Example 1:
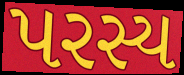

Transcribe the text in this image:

પરસ્ય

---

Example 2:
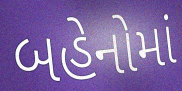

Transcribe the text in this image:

બહેનોમાં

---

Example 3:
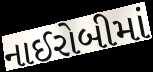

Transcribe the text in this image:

નાઈરોબીમાં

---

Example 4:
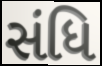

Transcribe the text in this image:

સંધિ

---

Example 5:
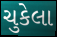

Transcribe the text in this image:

ચુકેલા